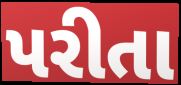
પરીતા